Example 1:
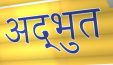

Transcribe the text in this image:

अद्‍भुत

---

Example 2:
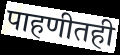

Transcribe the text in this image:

पाहणीतही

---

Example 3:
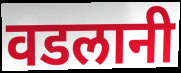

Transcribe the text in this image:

वडलानी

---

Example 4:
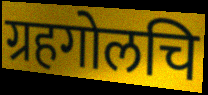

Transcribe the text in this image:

ग्रहगोलचि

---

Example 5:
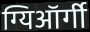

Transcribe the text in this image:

ग्यिऑर्गी